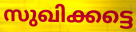
സുഖിക്കട്ടെ